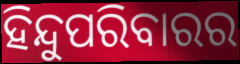
ହିନ୍ଦୁପରିବାରର